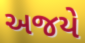
અજયે